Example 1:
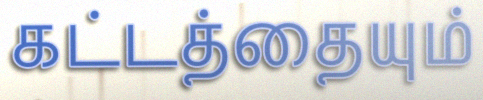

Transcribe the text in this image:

கட்டத்தையும்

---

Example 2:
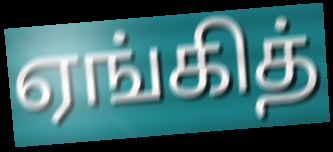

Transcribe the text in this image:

ஏங்கித்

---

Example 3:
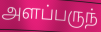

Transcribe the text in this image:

அளப்பருந்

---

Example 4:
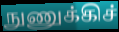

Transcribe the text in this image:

நுணுக்கிச்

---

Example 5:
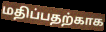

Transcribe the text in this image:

மதிப்பதற்காக